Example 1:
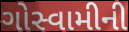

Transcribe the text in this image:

ગોસ્વામીની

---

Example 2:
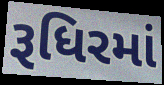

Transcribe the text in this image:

રૂધિરમાં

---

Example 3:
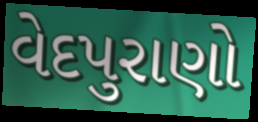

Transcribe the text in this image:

વેદપુરાણો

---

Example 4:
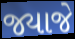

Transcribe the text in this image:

જ્યાજે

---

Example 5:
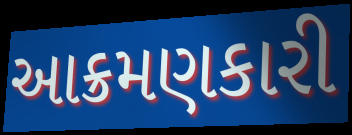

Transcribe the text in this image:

આક્રમણકારી